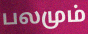
பலமும்